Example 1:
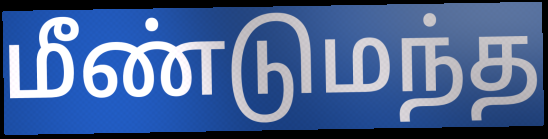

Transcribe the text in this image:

மீண்டுமந்த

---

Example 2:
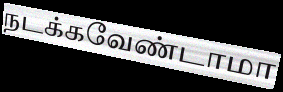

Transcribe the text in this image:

நடக்கவேண்டாமா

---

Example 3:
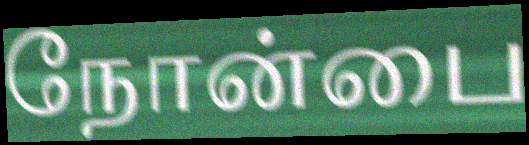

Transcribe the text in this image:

நோன்பை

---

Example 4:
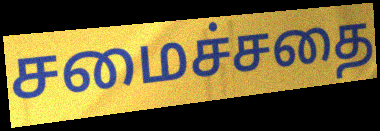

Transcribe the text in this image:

சமைச்சதை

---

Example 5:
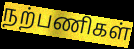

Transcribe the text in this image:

நற்பணிகள்